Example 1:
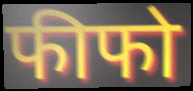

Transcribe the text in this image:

फीफो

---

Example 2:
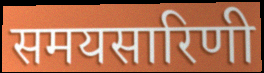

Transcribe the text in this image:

समयसारिणी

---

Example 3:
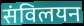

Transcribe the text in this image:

संविलयन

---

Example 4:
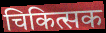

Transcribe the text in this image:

चिकित्‍सक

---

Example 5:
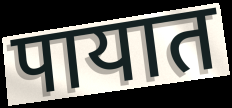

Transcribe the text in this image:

पायात